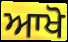
ਆਖੋ